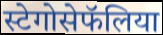
स्टेगोसेफॅलिया